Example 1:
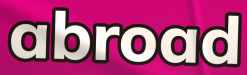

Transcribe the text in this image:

abroad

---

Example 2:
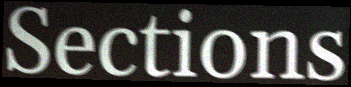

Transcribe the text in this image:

Sections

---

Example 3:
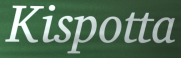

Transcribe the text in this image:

Kispotta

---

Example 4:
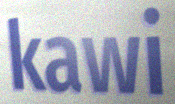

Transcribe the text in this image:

kawi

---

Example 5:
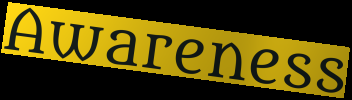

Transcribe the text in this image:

Awareness